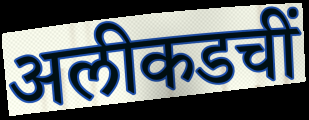
अलीकडचीं